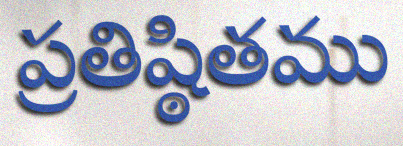
ప్రతిష్ఠితము